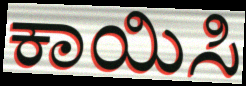
ಕಾಯಿಸಿ